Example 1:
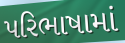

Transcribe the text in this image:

પરિભાષામાં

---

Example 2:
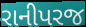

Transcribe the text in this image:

રાનીપરજ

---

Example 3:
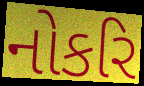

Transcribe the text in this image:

નોકરિ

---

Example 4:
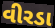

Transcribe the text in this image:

વીરડા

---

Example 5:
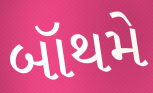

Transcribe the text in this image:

બૉથમે